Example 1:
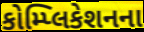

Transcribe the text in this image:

કોમ્પ્લિકેશનના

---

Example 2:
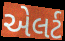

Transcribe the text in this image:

એલર્ટ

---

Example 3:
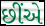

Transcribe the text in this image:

છીંએ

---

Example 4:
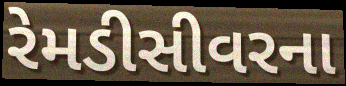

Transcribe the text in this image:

રેમડીસીવરના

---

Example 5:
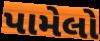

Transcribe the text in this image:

પામેલો